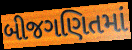
બીજગણિતમાં